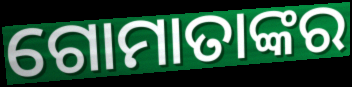
ଗୋମାତାଙ୍କର